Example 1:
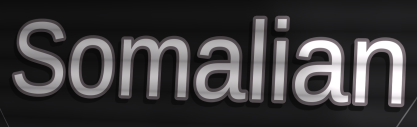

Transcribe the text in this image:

Somalian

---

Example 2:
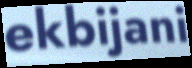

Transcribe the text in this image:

ekbijani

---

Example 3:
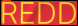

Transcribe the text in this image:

REDD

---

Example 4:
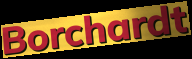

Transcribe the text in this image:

Borchardt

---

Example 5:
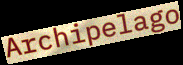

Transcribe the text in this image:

Archipelago